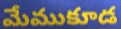
మేముకూడ